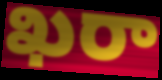
ఖరా